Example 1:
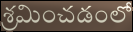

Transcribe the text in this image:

శ్రమించడంలో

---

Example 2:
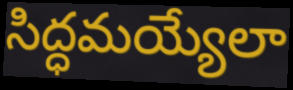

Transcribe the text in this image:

సిద్ధమయ్యేలా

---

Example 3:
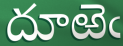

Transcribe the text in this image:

దూఱెఁ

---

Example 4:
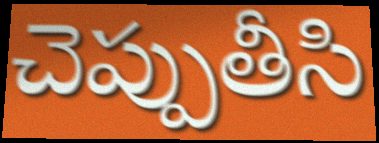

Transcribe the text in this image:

చెప్పుతీసి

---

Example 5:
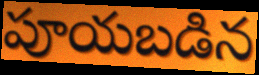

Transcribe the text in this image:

పూయబడిన